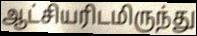
ஆட்சியரிடமிருந்து